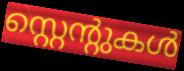
സ്റ്റെന്റുകൾ